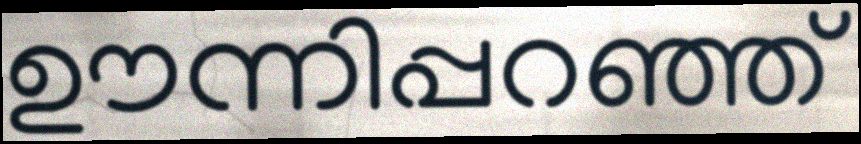
ഊന്നിപ്പറഞ്ഞ്